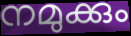
നമുക്കും